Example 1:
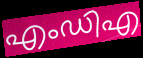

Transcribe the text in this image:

എംഡിഎ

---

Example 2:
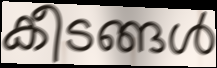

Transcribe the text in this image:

കീടങ്ങൾ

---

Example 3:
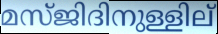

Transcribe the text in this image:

മസ്ജിദിനുള്ളില്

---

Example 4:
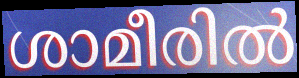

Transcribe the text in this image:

ശാമീരിൽ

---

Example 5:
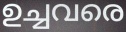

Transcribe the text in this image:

ഉച്ചവരെ